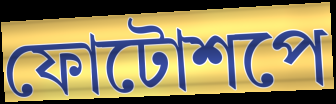
ফোটোশপে